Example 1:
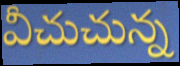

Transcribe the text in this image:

వీచుచున్న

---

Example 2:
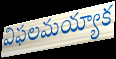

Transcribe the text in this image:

విఫలమయ్యాక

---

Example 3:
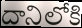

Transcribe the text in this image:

దానిలోకి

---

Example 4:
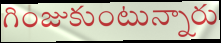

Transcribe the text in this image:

గింజుకుంటున్నారు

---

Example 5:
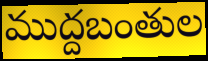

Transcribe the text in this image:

ముద్దబంతుల